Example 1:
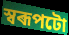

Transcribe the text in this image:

স্বৰূপটো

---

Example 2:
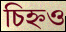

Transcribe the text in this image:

চিহ্নও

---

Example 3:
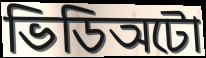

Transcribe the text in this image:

ভিডিঅটো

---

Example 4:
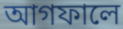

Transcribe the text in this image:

আগফালে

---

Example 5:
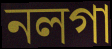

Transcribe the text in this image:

নলগা